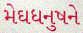
મેઘધનુષને